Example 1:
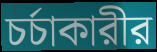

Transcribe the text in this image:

চর্চাকারীর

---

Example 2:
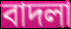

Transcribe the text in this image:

বাদলা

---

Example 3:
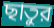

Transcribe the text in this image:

ছাতুর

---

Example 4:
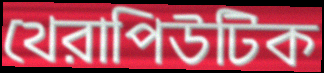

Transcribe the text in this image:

থেরাপিউটিক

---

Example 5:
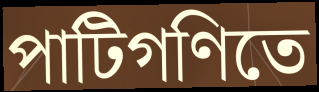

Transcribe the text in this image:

পাটিগণিতে